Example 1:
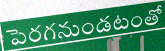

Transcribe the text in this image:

పెరగనుండటంతో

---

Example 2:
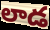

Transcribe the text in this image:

లాడ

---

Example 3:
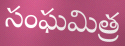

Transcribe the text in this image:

సంఘమిత్ర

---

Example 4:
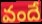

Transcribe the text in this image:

వందే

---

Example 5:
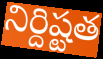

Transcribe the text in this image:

నిర్దిష్టత